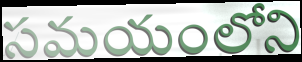
సమయంలోని